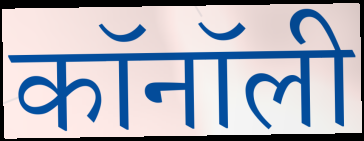
कॉनॉली